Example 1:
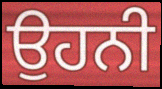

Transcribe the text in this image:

ਉਹਨੀ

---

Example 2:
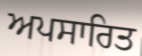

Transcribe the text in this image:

ਅਪਸਾਰਿਤ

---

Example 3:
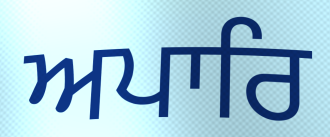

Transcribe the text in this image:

ਅਪਾਰਿ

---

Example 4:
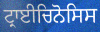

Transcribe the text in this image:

ਟ੍ਰਾਈਚਿਨੋਸਿਸ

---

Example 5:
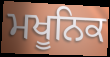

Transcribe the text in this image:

ਮਖੂਨਿਕ